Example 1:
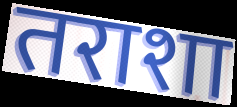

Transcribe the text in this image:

तराशा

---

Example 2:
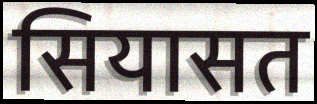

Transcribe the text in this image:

सियासत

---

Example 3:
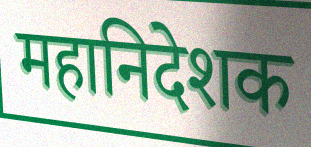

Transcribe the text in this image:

महानिदेशक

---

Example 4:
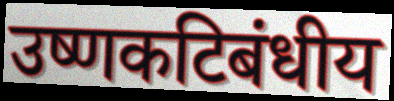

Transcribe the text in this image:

उष्णकटिबंधीय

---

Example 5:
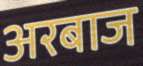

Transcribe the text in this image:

अरबाज